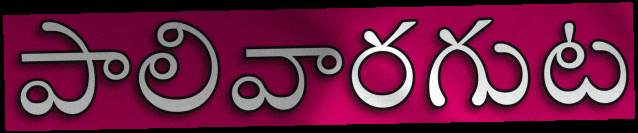
పాలివారగుట